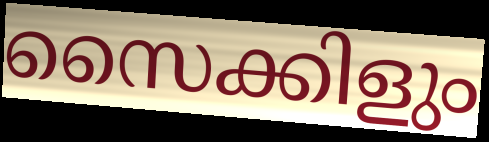
സൈക്കിളും